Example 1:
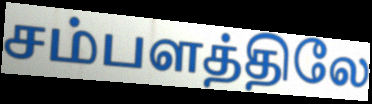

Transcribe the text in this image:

சம்பளத்திலே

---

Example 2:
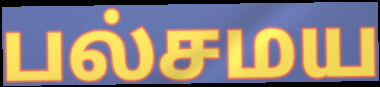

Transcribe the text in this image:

பல்சமய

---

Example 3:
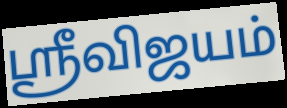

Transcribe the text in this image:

ஸ்ரீவிஜயம்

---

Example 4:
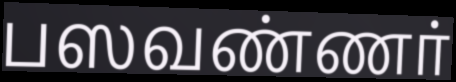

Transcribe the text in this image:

பஸவண்ணர்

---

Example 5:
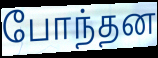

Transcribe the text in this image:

போந்தன